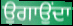
ਉਗਾਉਂਦਾ